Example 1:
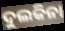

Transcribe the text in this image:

ଦୁଲକିନା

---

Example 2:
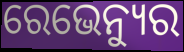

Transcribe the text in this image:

ରେଭେନ୍ୟୁର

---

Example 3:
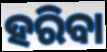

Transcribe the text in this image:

ହରିବା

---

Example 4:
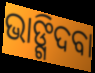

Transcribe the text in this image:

ଭାଙ୍ଗିଦବା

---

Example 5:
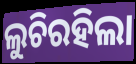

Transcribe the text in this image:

ଲୁଚିରହିଲା